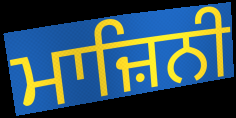
ਮਾਜ਼ਿਨੀ